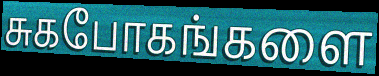
சுகபோகங்களை